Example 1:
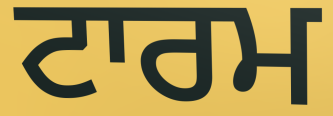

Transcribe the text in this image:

ਟਾਰਮ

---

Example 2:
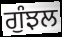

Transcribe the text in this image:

ਗੁੰਝਲ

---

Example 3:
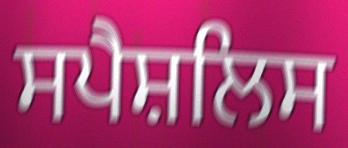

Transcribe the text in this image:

ਸਪੈਸ਼ਲਿਸ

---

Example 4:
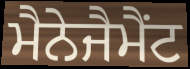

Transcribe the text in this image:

ਮੈਨੇਜੈਮੈਂਟ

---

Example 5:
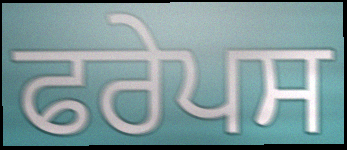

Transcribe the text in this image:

ਫਰੇਪਸ